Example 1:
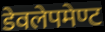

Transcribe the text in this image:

डेवलेपमेण्ट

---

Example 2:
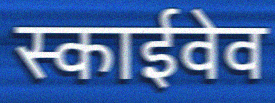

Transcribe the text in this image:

स्काईवेव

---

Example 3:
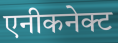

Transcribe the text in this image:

एनीकनेक्ट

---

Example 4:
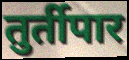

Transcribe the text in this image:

तुर्तीपार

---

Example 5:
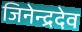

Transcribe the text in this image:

जिनेन्द्रदेव